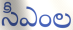
సీఎంల